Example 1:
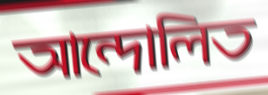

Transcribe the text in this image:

আন্দোলিত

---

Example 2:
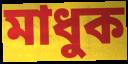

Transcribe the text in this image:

মাধুক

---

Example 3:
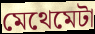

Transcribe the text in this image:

মেথেমেটা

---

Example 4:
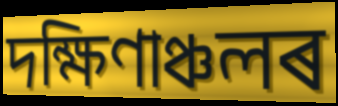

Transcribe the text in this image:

দক্ষিণাঞ্চলৰ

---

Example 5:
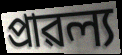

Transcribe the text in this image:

প্ৰাৱল্য